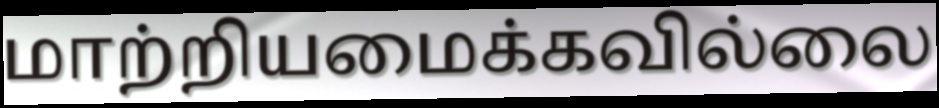
மாற்றியமைக்கவில்லை